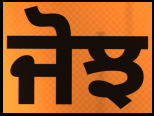
ਜੋਝ